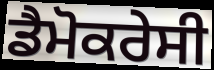
ਡੈਮੋਕਰੇਸੀ